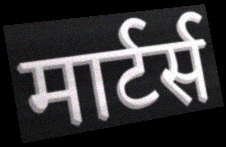
मार्टर्स